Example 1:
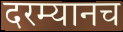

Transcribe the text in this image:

दरम्यानच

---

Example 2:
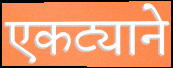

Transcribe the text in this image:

एकट्याने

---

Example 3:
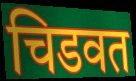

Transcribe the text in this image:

चिडवत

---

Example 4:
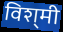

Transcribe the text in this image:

विश्मी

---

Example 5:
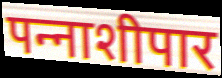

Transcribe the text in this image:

पन्नाशीपार